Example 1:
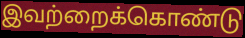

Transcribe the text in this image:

இவற்றைக்கொண்டு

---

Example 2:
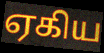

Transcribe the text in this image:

ஏகிய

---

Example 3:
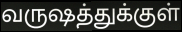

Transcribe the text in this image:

வருஷத்துக்குள்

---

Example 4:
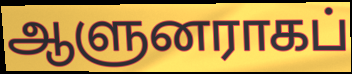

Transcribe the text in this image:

ஆளுனராகப்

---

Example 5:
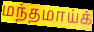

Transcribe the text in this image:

மந்தமாய்க்